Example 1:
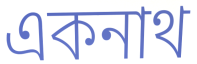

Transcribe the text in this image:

একনাথ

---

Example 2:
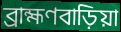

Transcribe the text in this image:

ব্রাহ্মণবাড়িয়া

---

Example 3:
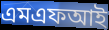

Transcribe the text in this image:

এমএফআই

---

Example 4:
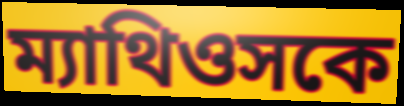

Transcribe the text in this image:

ম্যাথিওসকে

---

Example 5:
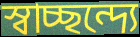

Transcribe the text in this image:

স্বাচ্ছন্দ্যে